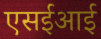
एसईआई